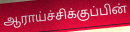
ஆராய்ச்சிக்குப்பின்